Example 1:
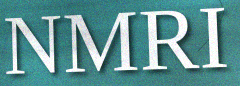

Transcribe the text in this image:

NMRI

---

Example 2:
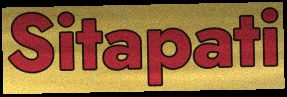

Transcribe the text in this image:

Sitapati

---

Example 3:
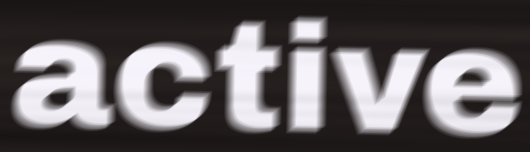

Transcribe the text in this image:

active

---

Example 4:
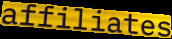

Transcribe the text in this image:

affiliates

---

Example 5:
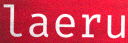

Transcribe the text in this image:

laeru